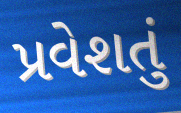
પ્રવેશતું